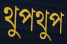
থুপথুপ